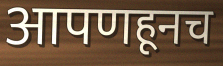
आपणहूनच